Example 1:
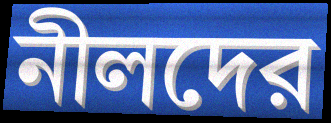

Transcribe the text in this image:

নীলদের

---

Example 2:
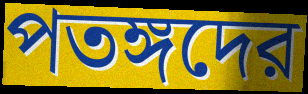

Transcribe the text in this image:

পতঙ্গদের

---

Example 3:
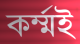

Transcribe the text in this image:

কর্ম্মই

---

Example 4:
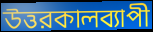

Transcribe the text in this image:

উত্তরকালব্যাপী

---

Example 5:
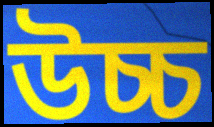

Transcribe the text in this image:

উচ্চ